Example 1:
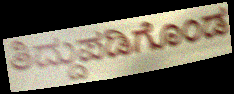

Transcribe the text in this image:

ತಿದ್ದುಪಡಿಗೊಂಡ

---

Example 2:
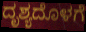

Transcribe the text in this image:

ದೃಶ್ಯದೊಳಗೆ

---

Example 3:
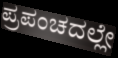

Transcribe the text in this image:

ಪ್ರಪಂಚದಲ್ಲೇ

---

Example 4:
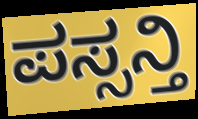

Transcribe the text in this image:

ಪಸ್ಸನ್ತಿ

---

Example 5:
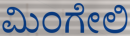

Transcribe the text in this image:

ಮಿಂಗೇಲಿ